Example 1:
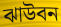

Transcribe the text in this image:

ঝাউবন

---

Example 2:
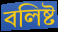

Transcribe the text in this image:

বলিষ্ট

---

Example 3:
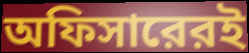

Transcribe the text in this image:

অফিসারেরই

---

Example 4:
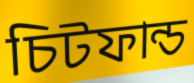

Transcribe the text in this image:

চিটফান্ড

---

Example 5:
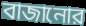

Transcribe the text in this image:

বাজানোর